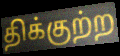
திக்குற்ற